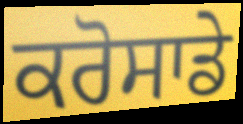
ਕਰੋਸਾਡੇ